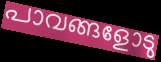
പാവങ്ങളോടു